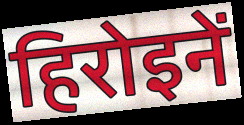
हिरोइनें